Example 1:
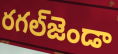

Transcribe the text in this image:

రగల్‌జెండా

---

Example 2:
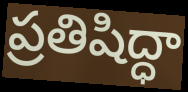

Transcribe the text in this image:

ప్రతిషిద్ధా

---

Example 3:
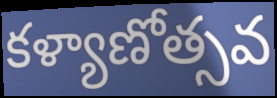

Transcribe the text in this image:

కళ్యాణోత్సవ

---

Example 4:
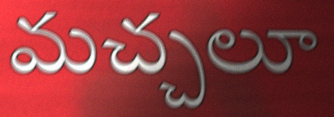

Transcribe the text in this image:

మచ్చలూ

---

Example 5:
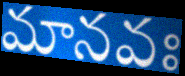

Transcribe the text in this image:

మానవః